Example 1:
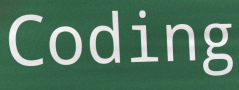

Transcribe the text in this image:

Coding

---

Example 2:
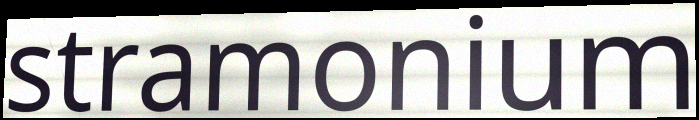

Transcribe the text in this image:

stramonium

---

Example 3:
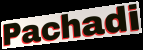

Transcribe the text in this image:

Pachadi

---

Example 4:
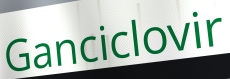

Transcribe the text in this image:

Ganciclovir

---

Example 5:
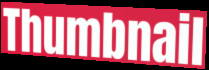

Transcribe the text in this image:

Thumbnail